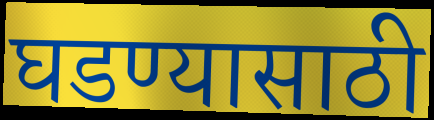
घडण्यासाठी